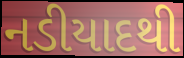
નડીયાદથી